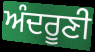
ਅੰਦਰੂਣੀ